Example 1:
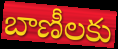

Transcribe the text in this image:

బాణీలకు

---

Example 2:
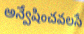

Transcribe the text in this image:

అన్వేషించవలసే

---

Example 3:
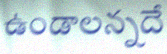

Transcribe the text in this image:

ఉండాలన్నదే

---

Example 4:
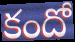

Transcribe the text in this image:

కందో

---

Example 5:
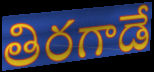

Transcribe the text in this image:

తిరగాడే